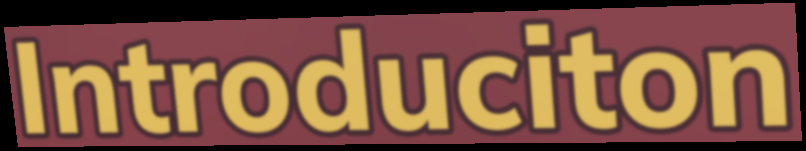
Introduciton